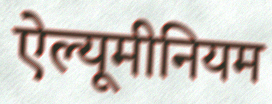
ऐल्यूमीनियम